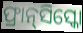
ଫ୍ରାନ୍‌ସିସ୍କୋ